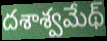
దశాశ్వమేథ్